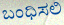
ಬಂಧಿಸಲಿ